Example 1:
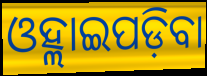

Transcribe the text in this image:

ଓହ୍ଲାଇପଡ଼ିବା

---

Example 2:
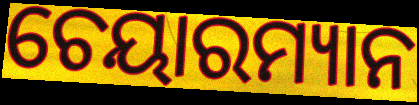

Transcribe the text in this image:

ଚେୟାରମ୍ୟାନ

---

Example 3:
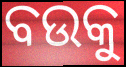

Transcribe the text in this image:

ବଉକୁ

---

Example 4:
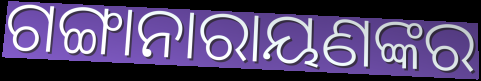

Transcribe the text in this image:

ଗଙ୍ଗାନାରାୟଣଙ୍କର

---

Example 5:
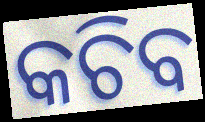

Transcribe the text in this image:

କଚିବ